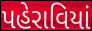
પહેરાવિયાં